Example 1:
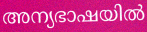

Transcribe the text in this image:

അന്യഭാഷയിൽ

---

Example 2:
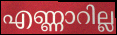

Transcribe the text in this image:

എണ്ണാറില്ല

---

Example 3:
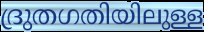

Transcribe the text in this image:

ദ്രുതഗതിയിലുള്ള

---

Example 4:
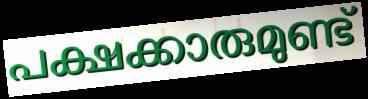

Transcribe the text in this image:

പക്ഷക്കാരുമുണ്ട്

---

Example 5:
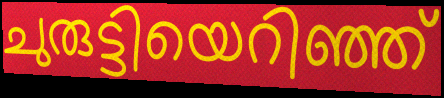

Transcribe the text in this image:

ചുരുട്ടിയെറിഞ്ഞ്